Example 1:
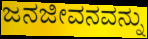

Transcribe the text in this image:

ಜನಜೀವನವನ್ನು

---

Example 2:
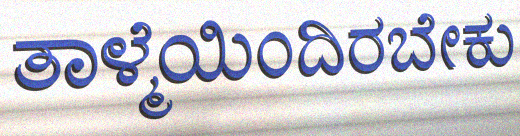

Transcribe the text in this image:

ತಾಳ್ಮೆಯಿಂದಿರಬೇಕು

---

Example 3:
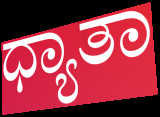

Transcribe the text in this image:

ಧ್ಯಾತಾ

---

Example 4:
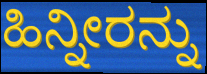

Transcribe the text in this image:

ಹಿನ್ನೀರನ್ನು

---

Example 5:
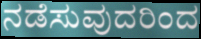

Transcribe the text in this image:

ನಡೆಸುವುದರಿಂದ